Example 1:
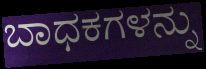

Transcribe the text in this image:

ಬಾಧಕಗಳನ್ನು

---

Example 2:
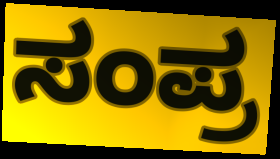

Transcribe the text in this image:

ಸಂಪ್ರ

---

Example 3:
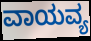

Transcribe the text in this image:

ವಾಯವ್ಯ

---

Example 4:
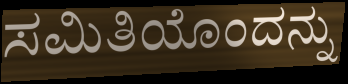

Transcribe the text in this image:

ಸಮಿತಿಯೊಂದನ್ನು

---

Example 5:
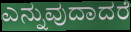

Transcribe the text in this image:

ಎನ್ನುವುದಾದರೆ